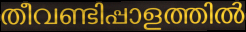
തീവണ്ടിപ്പാളത്തിൽ